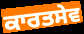
ਕਾਰਤਸੇਵ